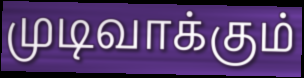
முடிவாக்கும்